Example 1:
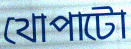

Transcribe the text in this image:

থোপাটো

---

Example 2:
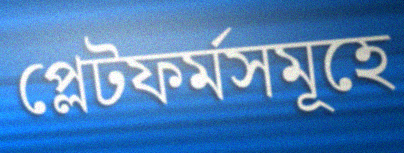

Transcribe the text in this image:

প্লেটফৰ্মসমূহে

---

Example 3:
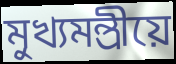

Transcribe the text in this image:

মুখ্যমন্ত্ৰীয়ে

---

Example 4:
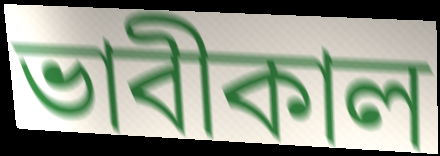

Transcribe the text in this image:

ভাবীকাল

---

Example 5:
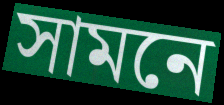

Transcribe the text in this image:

সামনে